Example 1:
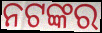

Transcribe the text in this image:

ନଟଙ୍କର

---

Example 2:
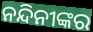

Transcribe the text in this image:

ନନ୍ଦିନୀଙ୍କର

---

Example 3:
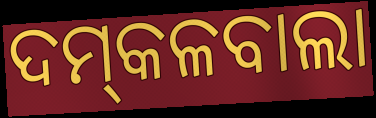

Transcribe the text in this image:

ଦମ୍‍କଳବାଲା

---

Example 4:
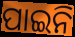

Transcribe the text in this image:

ପାଇନି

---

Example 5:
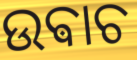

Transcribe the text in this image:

ଉଵାଚ